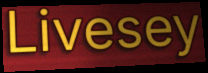
Livesey